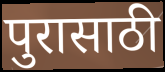
पुरासाठी